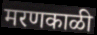
मरणकाळी